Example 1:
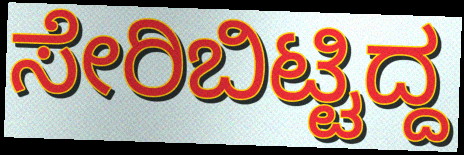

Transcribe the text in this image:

ಸೇರಿಬಿಟ್ಟಿದ್ದ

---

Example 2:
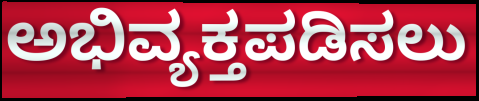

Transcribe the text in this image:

ಅಭಿವ್ಯಕ್ತಪಡಿಸಲು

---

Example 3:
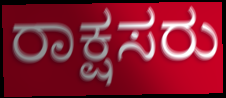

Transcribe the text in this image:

ರಾಕ್ಷಸರು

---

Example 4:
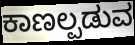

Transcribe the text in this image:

ಕಾಣಲ್ಪಡುವ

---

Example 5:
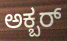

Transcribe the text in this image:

ಅಕ್ಬರ್